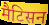
मैटिसन